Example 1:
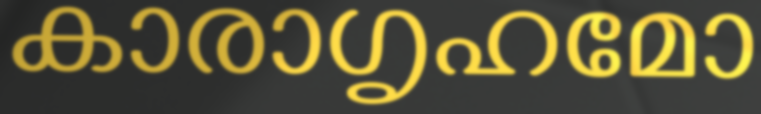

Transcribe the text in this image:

കാരാഗൃഹമോ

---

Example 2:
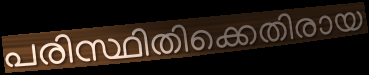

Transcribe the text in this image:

പരിസ്ഥിതിക്കെതിരായ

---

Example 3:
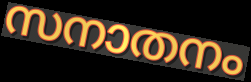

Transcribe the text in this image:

സനാതനം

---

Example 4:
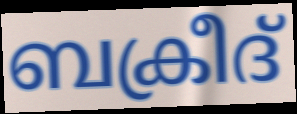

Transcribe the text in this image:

ബക്രീദ്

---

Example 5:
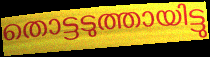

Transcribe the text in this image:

തൊട്ടടുത്തായിട്ടു